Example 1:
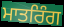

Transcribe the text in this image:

ਮਾਤਰਿੰਗ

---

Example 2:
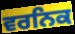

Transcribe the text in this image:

ਵਰਨਿਕ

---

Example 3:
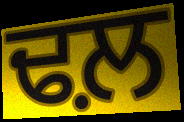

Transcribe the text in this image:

ਢਲ਼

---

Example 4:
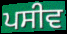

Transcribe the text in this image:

ਪਸੀਵ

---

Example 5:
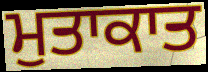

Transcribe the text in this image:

ਮੁਤਾਕਾਤ